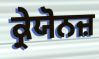
ਕ੍ਰੇਯੋਨਜ਼